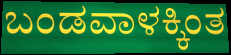
ಬಂಡವಾಳಕ್ಕಿಂತ